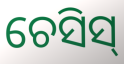
ଚେସିସ୍